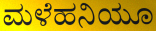
ಮಳೆಹನಿಯೂ